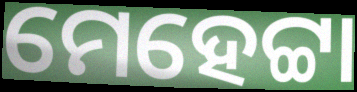
ମେହେଟ୍ଟା